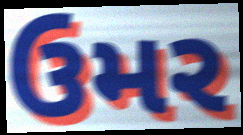
ઉમર